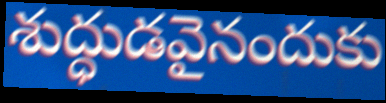
శుద్ధుడవైనందుకు